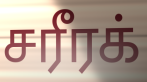
சரீரக்